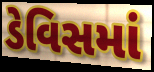
ડેવિસમાં